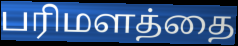
பரிமளத்தை